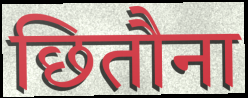
छितौना